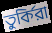
তুর্কিরা